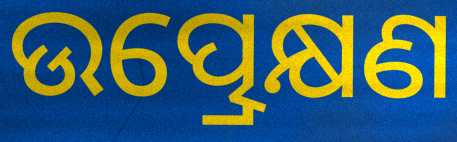
ଉତ୍ପ୍ରେକ୍ଷଣ